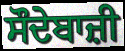
ਸੌਦੇਬਾਜ਼ੀ